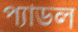
প্যাডল